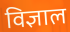
विज्ञाल